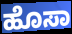
ಹೊಸಾ